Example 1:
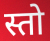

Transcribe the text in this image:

स्तो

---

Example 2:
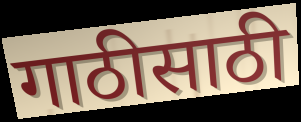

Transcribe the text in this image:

गाठीसाठी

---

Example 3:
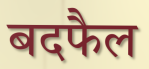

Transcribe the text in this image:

बदफैल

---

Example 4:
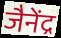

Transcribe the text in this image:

जैनेंद्र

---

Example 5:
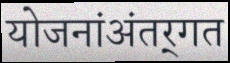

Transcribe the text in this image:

योजनांअंतर्गत